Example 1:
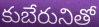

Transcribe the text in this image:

కుబేరునితో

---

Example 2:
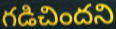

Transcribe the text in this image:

గడిచిందని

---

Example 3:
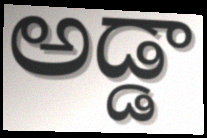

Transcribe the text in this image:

అడ్డా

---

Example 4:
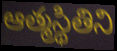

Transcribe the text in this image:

ఆత్మస్థితిని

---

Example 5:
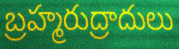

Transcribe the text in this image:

బ్రహ్మరుద్రాదులు